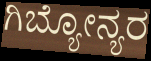
ಗಿಬ್ಯೋನ್ಯರ